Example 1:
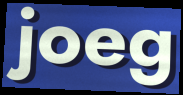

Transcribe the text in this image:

joeg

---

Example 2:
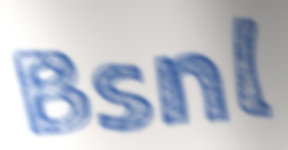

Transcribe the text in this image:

Bsnl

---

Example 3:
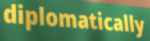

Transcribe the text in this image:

diplomatically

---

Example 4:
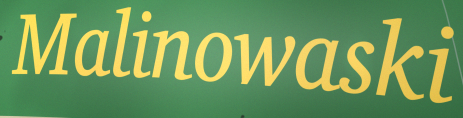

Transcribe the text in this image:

Malinowaski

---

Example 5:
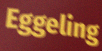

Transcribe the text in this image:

Eggeling